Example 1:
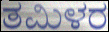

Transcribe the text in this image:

ತಮಿಳರ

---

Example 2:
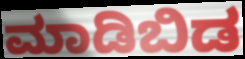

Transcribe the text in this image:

ಮಾಡಿಬಿಡ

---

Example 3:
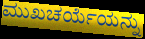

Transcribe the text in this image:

ಮುಖಚರ್ಯೆಯನ್ನು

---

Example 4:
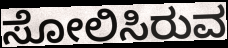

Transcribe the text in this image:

ಸೋಲಿಸಿರುವ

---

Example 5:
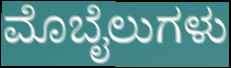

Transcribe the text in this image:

ಮೊಬೈಲುಗಳು